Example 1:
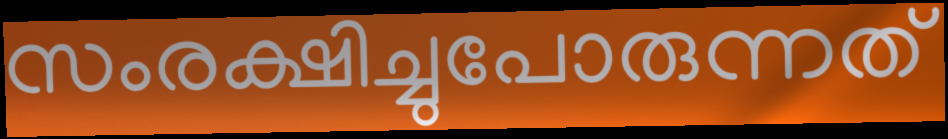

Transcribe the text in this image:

സംരക്ഷിച്ചുപോരുന്നത്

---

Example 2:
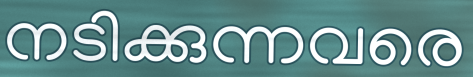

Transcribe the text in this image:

നടിക്കുന്നവരെ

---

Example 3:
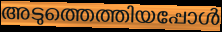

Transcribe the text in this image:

അടുത്തെത്തിയപ്പോൾ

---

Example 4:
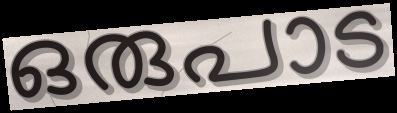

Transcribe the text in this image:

ഒരുപാട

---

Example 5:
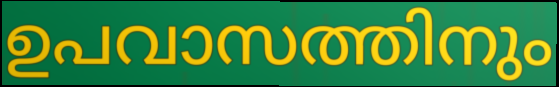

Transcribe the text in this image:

ഉപവാസത്തിനും